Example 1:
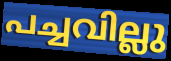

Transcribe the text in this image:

പച്ചവില്ലു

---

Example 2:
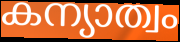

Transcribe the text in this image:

കന്യാത്വം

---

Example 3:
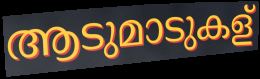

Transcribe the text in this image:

ആടുമാടുകള്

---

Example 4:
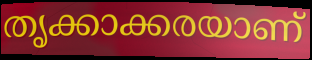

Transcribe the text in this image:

തൃക്കാക്കരയാണ്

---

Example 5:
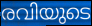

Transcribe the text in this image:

രവിയുടെ